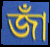
জাঁ